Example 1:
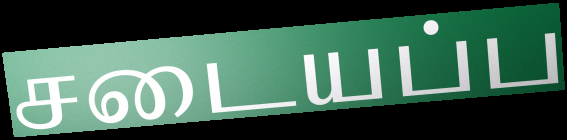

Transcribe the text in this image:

சடையப்ப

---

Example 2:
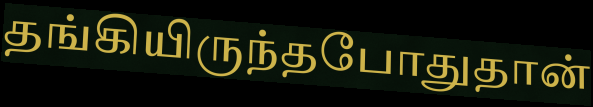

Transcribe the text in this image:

தங்கியிருந்தபோதுதான்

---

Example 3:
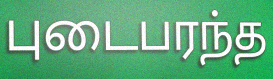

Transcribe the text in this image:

புடைபரந்த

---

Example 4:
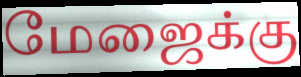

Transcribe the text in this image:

மேஜைக்கு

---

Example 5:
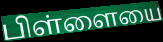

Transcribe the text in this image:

பிள்ளையை